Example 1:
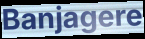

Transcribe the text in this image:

Banjagere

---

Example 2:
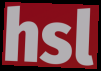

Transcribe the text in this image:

hsl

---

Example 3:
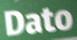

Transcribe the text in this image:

Dato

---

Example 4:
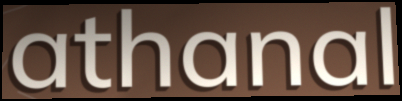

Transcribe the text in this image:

athanal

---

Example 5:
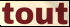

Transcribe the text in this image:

tout